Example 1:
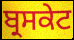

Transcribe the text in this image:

ਬ੍ਰਸਕੇਟ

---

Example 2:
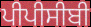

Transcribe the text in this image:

ਪੀਪੀਸੀਬੀ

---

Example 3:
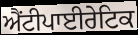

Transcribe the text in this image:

ਐਂਟੀਪਾਈਰੇਟਿਕ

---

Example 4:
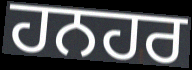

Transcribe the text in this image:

ਹਨਹਰ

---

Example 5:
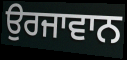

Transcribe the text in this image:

ਉਰਜਾਵਾਨ